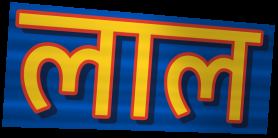
लाल